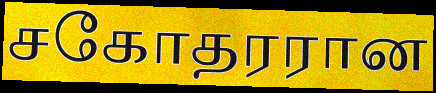
சகோதரரான